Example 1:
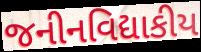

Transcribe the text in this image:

જનીનવિદ્યાકીય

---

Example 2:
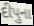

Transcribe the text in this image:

દીપુના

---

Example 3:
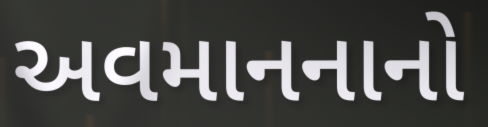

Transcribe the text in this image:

અવમાનનાનો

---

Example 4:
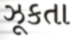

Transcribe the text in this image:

ઝૂકતા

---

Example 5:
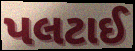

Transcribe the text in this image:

પલટાઈ